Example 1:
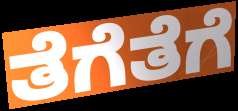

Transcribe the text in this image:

ತೆಗೆತೆಗೆ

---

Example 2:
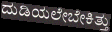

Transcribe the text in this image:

ದುಡಿಯಲೇಬೇಕಿತ್ತು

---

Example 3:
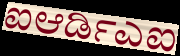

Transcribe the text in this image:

ಐಆರ್ಡಿಎಐ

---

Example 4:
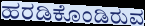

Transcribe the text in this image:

ಹರಡಿಕೊಂಡಿರುವ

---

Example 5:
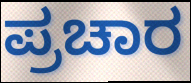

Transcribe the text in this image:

ಪ್ರಚಾರ